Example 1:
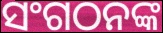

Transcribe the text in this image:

ସଂଗଠନଙ୍କ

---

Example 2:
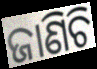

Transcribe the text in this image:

ଜାଣିଚି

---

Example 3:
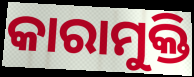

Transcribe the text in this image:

କାରାମୁକ୍ତି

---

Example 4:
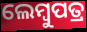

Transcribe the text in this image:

ଲେମ୍ବୁପତ୍ର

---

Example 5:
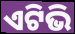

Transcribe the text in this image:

ଏଟିଭି